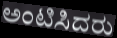
ಅಂಟಿಸಿದರು